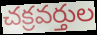
చక్రవర్తుల